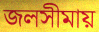
জলসীমায়